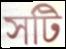
সটি